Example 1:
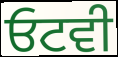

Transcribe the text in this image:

ਓਟਵੀ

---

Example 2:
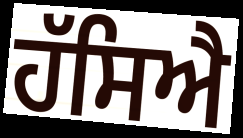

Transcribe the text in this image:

ਹੱਸਿਐ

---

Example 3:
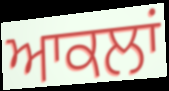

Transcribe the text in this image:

ਆਕਲਾਂ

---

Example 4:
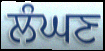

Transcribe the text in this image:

ਲੰਘਣ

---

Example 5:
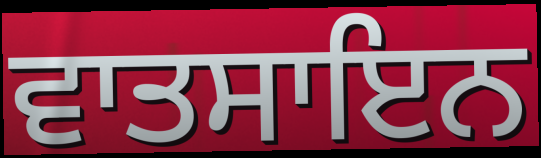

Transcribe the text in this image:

ਵਾਤਸਾਇਨ